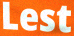
Lest